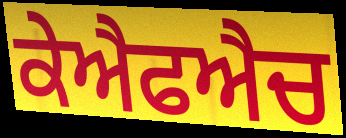
ਕੇਐਫਐਚ